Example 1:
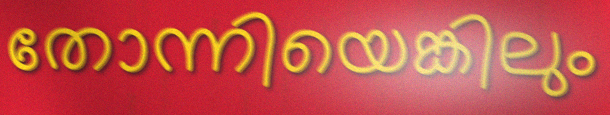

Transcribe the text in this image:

തോന്നിയെങ്കിലും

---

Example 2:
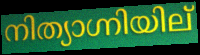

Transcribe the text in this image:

നിത്യാഗ്നിയില്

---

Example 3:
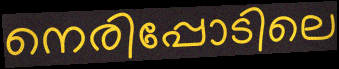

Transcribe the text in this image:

നെരിപ്പോടിലെ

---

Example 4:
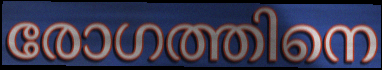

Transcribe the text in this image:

രോഗത്തിനെ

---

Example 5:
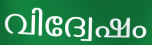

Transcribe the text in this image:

വിദ്വേഷം